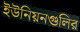
ইউনিয়নগুলির